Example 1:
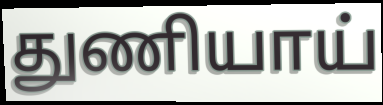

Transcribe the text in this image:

துணியாய்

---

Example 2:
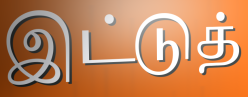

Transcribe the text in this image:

இட்டுத்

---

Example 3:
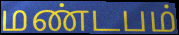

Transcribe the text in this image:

மண்டபம்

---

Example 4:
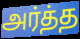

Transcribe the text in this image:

அர்த்த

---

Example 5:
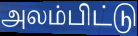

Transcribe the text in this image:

அலம்பிட்டு